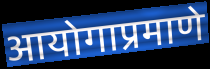
आयोगाप्रमाणे